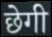
छेगी